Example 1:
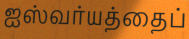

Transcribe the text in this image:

ஐஸ்வர்யத்தைப்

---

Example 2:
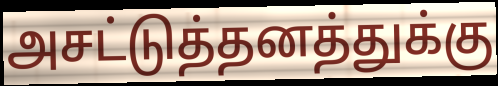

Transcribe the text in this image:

அசட்டுத்தனத்துக்கு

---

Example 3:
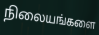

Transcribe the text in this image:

நிலையங்களை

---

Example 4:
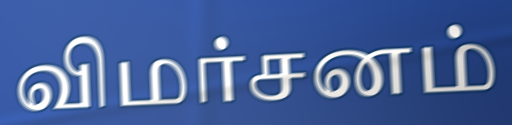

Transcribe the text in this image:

விமர்சனம்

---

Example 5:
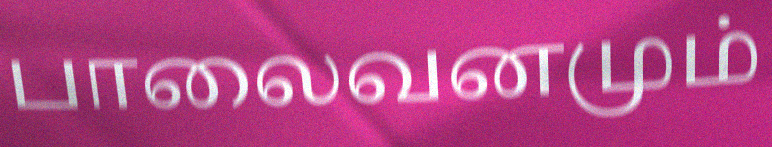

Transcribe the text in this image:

பாலைவனமும்